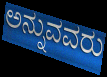
ಅನ್ನುವವರು